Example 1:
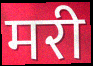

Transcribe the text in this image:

मरी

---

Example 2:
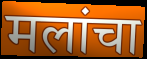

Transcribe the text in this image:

मलांचा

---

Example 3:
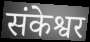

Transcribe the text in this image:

संकेश्वर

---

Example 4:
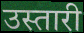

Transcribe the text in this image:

उस्तारी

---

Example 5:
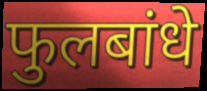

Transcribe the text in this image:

फुलबांधे